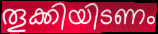
തൂക്കിയിടണം